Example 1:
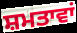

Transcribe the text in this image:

ਸ਼ਮਤਾਵਾਂ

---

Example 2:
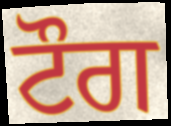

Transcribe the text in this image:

ਟੌਗ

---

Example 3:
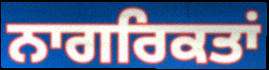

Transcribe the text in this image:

ਨਾਗਰਿਕਤਾਂ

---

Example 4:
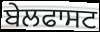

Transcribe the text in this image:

ਬੇਲਫਾਸਟ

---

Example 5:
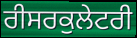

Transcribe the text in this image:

ਰੀਸਰਕੁਲੇਟਰੀ